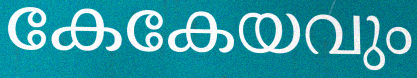
കേകേയവും